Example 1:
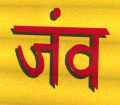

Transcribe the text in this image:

जंव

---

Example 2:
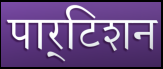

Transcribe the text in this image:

पार्टिशन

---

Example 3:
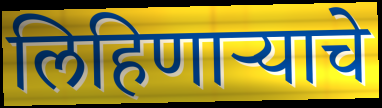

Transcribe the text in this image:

लिहिणाऱ्याचे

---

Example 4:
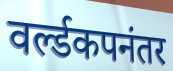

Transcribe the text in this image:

वर्ल्डकपनंतर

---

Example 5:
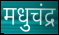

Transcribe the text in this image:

मधुचंद्र